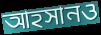
আহসানও